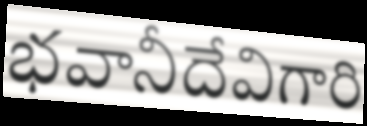
భవానీదేవిగారి